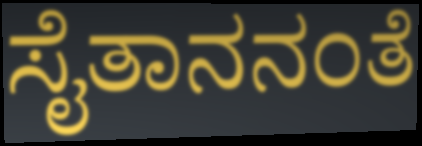
ಸೈತಾನನಂತೆ